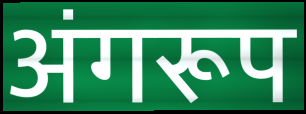
अंगरूप